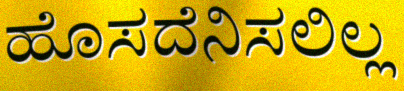
ಹೊಸದೆನಿಸಲಿಲ್ಲ